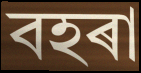
বহৰা